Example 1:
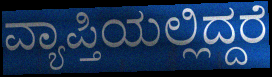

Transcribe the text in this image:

ವ್ಯಾಪ್ತಿಯಲ್ಲಿದ್ದರೆ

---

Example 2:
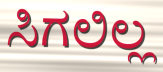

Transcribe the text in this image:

ಸಿಗಲಿಲ್ಲ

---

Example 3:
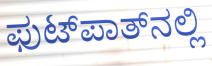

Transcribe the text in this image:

ಫುಟ್‌ಪಾತ್‌ನಲ್ಲಿ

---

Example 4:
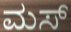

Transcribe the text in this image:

ಮಸ್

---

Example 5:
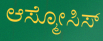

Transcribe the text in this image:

ಆಸ್ಮೋಸಿಸ್